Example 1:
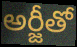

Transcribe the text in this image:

అర్జీతో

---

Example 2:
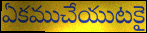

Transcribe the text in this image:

ఏకముచేయుటకై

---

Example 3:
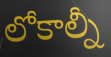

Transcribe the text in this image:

లోకాల్నీ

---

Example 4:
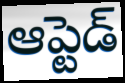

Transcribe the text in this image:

ఆప్టెడ్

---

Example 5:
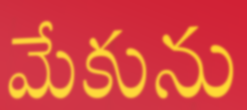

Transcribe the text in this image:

మేకును